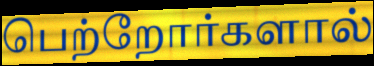
பெற்றோர்களால்